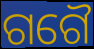
ଗଗୈ